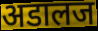
अडालज